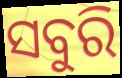
ସବୁରି